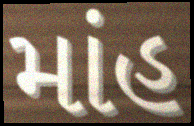
માંહ